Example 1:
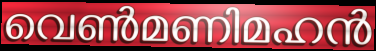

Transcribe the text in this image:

വെൺമണിമഹൻ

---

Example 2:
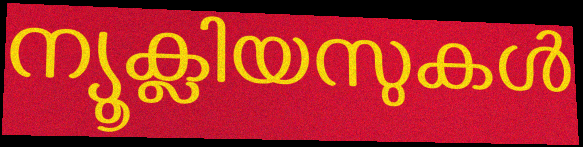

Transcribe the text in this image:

ന്യൂക്ലിയസുകൾ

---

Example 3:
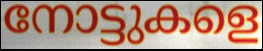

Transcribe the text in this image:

നോട്ടുകളെ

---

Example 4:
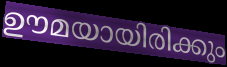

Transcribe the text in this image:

ഊമയായിരിക്കും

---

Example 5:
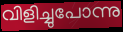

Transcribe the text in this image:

വിളിച്ചുപോന്നു